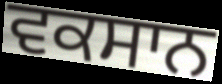
ਵਕਸਾਨ